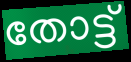
തോട്ട്